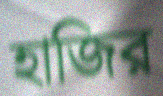
হাজির